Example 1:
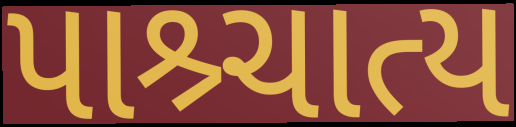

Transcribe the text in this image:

પાશ્ર્ચાત્ય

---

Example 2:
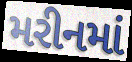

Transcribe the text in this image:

મરીનમાં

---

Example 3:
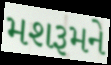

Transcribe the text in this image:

મશરૂમને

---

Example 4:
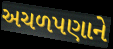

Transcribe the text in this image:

અચળપણાને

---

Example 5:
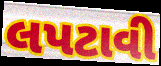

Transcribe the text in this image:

લપટાવી